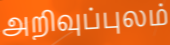
அறிவுப்புலம்